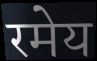
रमेय